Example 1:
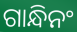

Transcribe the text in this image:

ଗାନ୍ଧିନଂ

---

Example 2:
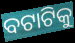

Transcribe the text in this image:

ବଟାଟିକୁ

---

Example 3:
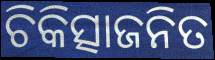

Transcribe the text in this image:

ଚିକିତ୍ସାଜନିତ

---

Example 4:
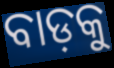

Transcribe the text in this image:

ବାଡ଼କୁ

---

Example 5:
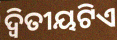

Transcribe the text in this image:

ଦ୍ୱିତୀୟଟିଏ